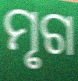
ମୃଗ